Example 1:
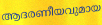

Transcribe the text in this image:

ആദരണീയവുമായ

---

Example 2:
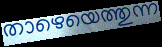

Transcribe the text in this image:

താഴെയെത്തുന്ന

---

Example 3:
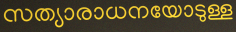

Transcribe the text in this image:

സത്യാരാധനയോടുള്ള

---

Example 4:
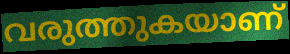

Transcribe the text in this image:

വരുത്തുകയാണ്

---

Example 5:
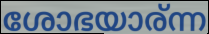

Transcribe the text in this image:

ശോഭയാര്ന്ന